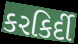
કરકિર્દી